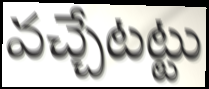
వచ్చేటట్టు